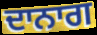
ਦਾਨਾਗ